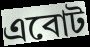
এবোট